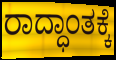
ರಾದ್ಧಾಂತಕ್ಕೆ